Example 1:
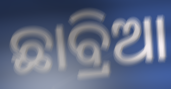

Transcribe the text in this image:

ଛାବ୍ରିଆ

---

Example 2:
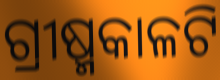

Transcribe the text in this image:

ଗ୍ରୀଷ୍ମକାଳଟି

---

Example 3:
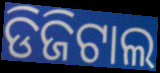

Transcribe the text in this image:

ଡିଜିଟାଲ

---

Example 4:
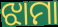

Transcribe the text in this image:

ଝାମା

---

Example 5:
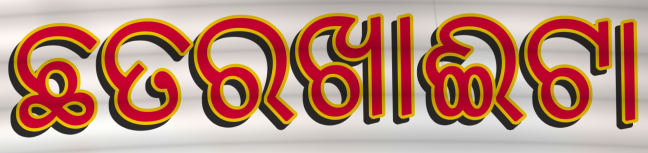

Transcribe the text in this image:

ଛତରଖାଈଟା